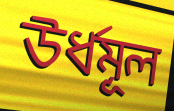
উর্ধমূল